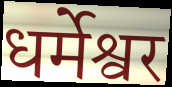
धर्मेश्वर